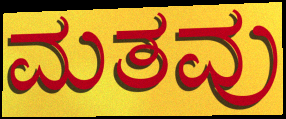
ಮತವು